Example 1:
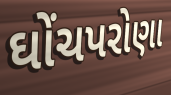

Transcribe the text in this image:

ઘોંચપરોણા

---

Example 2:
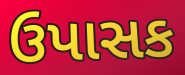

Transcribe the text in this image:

ઉપાસક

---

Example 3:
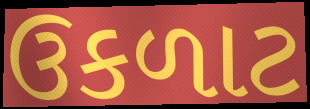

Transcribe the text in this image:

ઉકળાટ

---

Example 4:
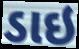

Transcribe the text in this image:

ડાઇ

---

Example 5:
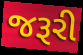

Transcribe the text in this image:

જરૂરી